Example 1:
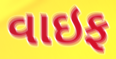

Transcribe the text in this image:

વાઇફ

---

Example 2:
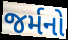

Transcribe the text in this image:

જર્મનો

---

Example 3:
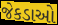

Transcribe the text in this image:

જેકડાઓ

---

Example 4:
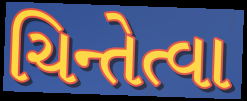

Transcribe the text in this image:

ચિન્તેત્વા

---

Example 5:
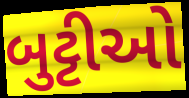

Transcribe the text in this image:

બુટ્ટીઓ